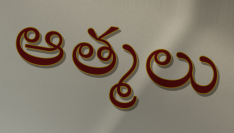
ఆత్మలు